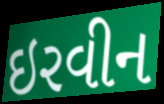
ઇરવીન